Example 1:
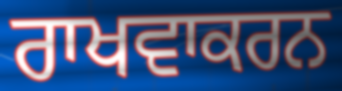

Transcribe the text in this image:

ਰਾਖਵਾਕਰਨ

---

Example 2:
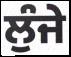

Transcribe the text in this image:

ਲੁੰਜੇ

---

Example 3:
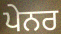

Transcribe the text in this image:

ਪੇਨਰ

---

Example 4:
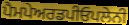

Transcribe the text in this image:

ਪੈਮਪੇਅਰਡਪੀਓਪਲੇਨੀ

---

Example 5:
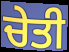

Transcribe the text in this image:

ਚੇਤੀ